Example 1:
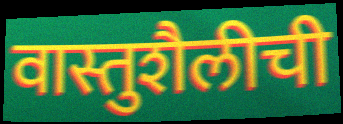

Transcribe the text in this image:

वास्तुशैलीची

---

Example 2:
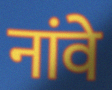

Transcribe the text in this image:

नांवे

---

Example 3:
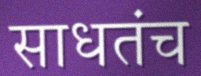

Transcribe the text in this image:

साधतंच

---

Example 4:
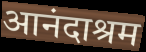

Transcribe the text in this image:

आनंदाश्रम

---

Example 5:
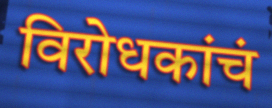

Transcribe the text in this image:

विरोधकांचं